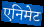
एनिमेट